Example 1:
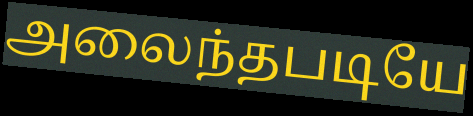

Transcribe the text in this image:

அலைந்தபடியே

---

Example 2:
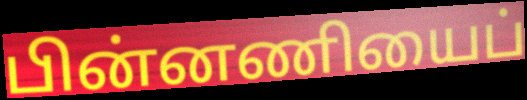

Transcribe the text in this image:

பின்னணியைப்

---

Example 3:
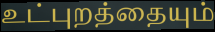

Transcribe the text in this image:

உட்புறத்தையும்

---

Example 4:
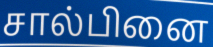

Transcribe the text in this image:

சால்பினை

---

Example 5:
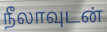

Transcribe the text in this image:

நீலாவுடன்